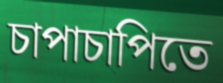
চাপাচাপিতে